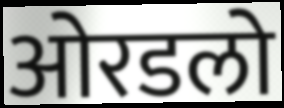
ओरडलो